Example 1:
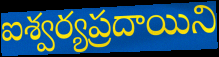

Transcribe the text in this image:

ఐశ్వర్యప్రదాయిని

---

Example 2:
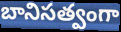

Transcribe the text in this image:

బానిసత్వంగా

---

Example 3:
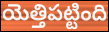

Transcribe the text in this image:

యెత్తిపట్టింది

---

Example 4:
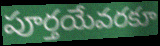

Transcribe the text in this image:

పూర్తయేవరకూ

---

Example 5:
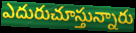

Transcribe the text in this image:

ఎదురుచూస్తున్నారు